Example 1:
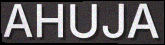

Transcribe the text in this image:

AHUJA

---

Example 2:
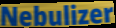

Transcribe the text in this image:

Nebulizer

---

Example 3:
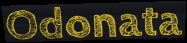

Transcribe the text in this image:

Odonata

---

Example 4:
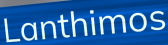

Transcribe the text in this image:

Lanthimos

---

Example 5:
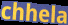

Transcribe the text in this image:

chhela